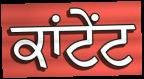
ਕਾਂਟੇਂਟ